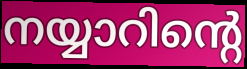
നയ്യാറിന്റെ